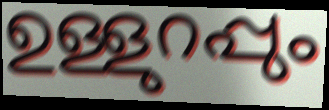
ഉള്ളുറപ്പും